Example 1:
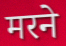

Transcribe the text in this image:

मरने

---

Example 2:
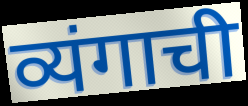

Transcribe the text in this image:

व्यंगाची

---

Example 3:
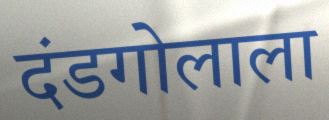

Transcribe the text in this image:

दंडगोलाला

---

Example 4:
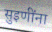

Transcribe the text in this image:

सुइणींना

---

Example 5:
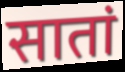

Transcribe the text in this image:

सातां